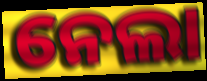
ନେଲା